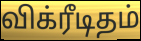
விக்ரீடிதம்